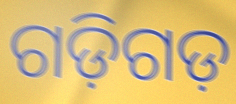
ଗଡ଼ିଗଡ଼